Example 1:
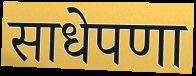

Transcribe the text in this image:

साधेपणा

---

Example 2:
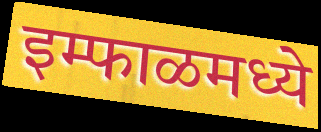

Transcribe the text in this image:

इम्फाळमध्ये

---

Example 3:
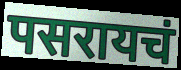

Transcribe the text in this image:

पसरायचं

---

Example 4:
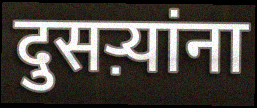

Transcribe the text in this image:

दुसऱ्‍यांना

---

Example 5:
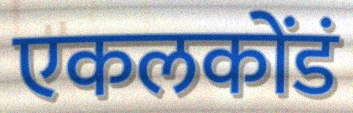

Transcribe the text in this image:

एकलकोंडं